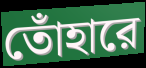
তোঁহারে